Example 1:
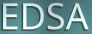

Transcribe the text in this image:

EDSA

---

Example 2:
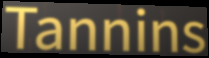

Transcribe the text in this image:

Tannins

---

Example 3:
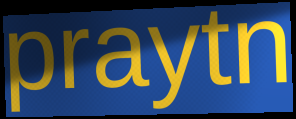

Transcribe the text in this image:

praytn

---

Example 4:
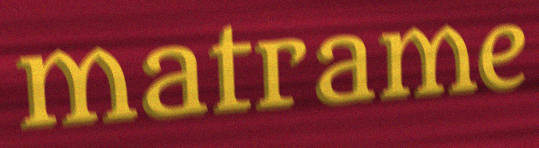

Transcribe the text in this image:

matrame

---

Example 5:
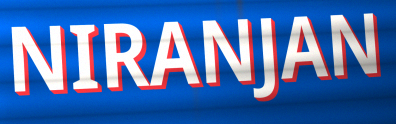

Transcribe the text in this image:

NIRANJAN